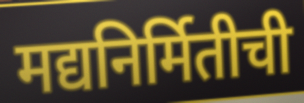
मद्यनिर्मितीची